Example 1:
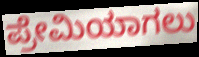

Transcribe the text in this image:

ಪ್ರೇಮಿಯಾಗಲು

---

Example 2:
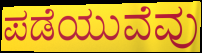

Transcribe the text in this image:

ಪಡೆಯುವೆವು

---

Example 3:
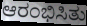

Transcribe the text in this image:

ಆರಂಭಿಸಿತು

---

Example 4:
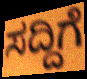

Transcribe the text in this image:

ಸದ್ದಿಗೆ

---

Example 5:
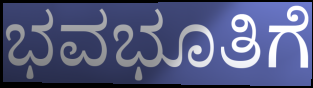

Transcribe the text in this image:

ಭವಭೂತಿಗೆ